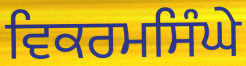
ਵਿਕਰਮਸਿੰਘੇ